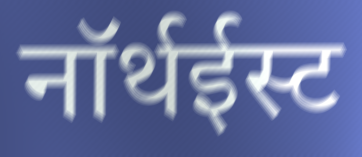
नॉर्थईस्‍ट